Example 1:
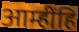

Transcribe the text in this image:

आम्हींहि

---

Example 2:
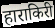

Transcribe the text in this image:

हाराकिरी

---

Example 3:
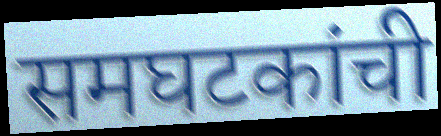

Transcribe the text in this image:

समघटकांची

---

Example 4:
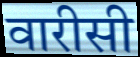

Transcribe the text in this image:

वारीसी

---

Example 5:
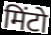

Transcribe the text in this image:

मिंटो